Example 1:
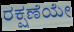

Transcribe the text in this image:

ರಕ್ಷಣೆಯೇ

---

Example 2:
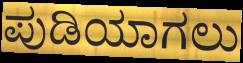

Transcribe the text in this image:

ಪುಡಿಯಾಗಲು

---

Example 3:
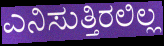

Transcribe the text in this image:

ಎನಿಸುತ್ತಿರಲಿಲ್ಲ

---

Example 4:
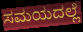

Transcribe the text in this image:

ಸಮಯದಲ್ಲೆ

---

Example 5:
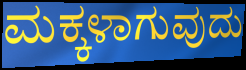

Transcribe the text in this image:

ಮಕ್ಕಳಾಗುವುದು